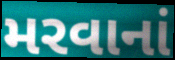
મરવાનાં